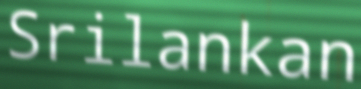
Srilankan